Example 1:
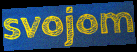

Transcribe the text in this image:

svojom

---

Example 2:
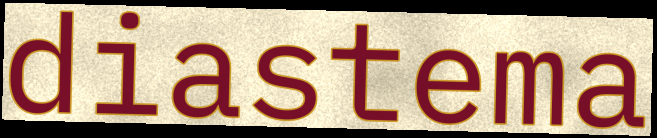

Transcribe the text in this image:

diastema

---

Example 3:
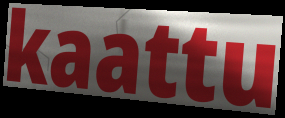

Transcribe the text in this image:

kaattu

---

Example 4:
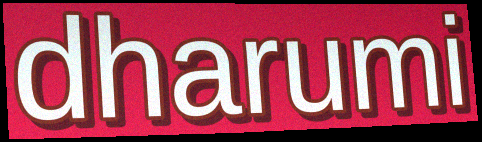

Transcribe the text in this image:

dharumi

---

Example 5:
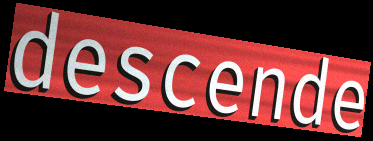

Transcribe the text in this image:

descende